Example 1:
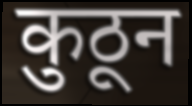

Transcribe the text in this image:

कुठून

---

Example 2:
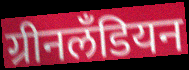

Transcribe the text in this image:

ग्रीनलॅंडियन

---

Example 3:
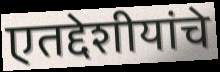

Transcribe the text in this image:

एतद्देशीयांचे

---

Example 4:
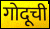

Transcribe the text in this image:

गोदूची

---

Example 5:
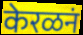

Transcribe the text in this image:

केरळनं